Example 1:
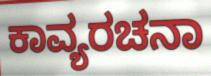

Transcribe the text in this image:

ಕಾವ್ಯರಚನಾ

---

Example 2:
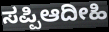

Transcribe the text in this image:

ಸಪ್ಪಿಆದೀಹಿ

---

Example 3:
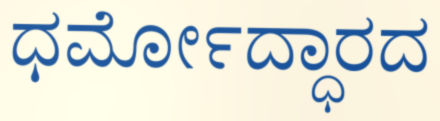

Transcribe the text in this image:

ಧರ್ಮೋದ್ಧಾರದ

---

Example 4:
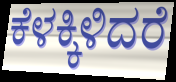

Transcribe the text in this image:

ಕೆಳಕ್ಕಿಳಿದರೆ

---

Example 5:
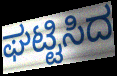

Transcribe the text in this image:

ಘಟ್ಟಿಸಿದ